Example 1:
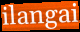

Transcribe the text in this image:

ilangai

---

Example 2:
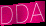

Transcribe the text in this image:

DDA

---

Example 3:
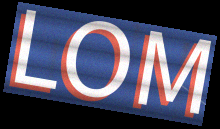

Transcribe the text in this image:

LOM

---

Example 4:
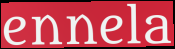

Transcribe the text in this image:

ennela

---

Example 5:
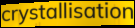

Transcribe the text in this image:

crystallisation